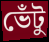
ভেঁটু